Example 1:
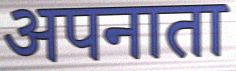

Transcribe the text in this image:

अपनाता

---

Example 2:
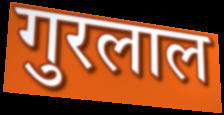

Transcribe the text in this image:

गुरलाल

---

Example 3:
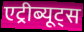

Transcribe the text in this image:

एट्रीब्यूट्स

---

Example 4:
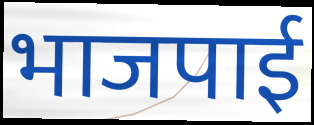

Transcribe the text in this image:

भाजपाई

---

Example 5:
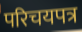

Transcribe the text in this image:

परिचयपत्र